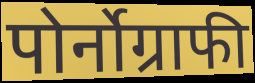
पोर्नोग्राफी